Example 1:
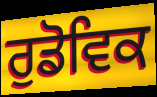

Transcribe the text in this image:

ਰੁਡੋਵਿਕ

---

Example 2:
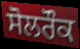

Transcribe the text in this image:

ਸੋਲਰੌਕ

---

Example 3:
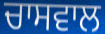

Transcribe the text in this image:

ਚਾਸਵਾਲ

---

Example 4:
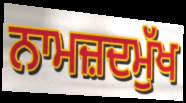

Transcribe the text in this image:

ਨਾਮਜ਼ਦਮੁੱਖ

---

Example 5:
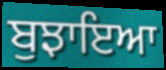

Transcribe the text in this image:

ਬੁਝਾਇਆ